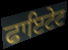
ਫਾਇਟੇਟ